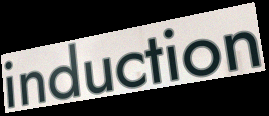
induction